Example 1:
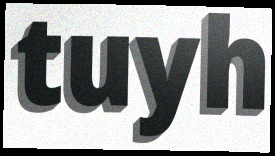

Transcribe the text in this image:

tuyh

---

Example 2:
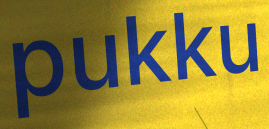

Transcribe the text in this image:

pukku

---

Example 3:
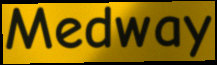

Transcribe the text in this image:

Medway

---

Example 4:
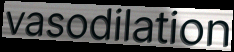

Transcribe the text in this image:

vasodilation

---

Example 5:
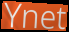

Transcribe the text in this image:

Ynet